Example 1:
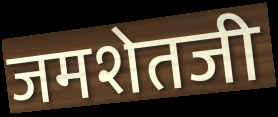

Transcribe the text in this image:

जमशेतजी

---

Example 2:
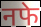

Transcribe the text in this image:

नफे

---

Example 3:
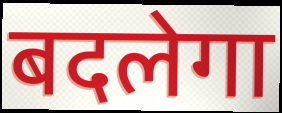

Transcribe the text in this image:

बदलेगा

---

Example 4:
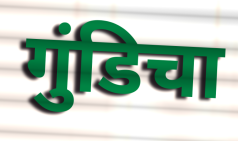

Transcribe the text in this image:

गुंडिचा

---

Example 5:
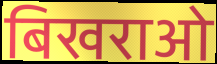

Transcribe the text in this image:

बिखराओ